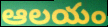
ఆలయం